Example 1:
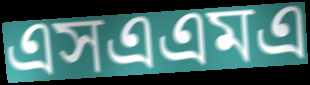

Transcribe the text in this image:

এসএএমএ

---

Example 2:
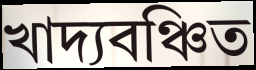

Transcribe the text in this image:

খাদ্যবঞ্চিত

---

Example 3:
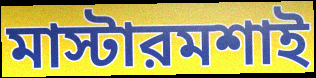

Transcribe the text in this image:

মাস্টারমশাই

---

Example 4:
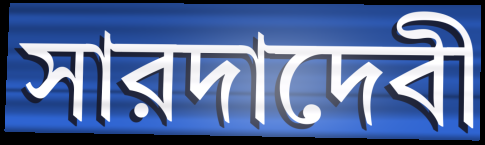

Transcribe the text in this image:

সারদাদেবী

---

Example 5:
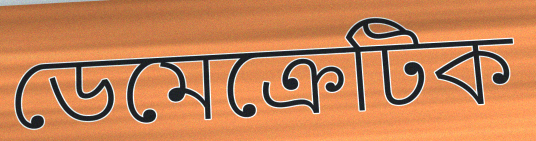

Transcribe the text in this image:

ডেমেক্রেটিক